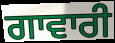
ਗਾਵਾਰੀ